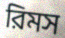
রিমস